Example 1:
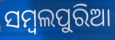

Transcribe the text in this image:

ସମ୍ୱଲପୁରିଆ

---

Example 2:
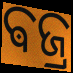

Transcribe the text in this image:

ଵଜ୍ର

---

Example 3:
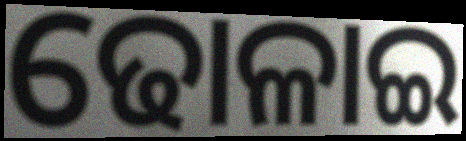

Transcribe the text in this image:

ଢୋଳାଇ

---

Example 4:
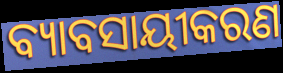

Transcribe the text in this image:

ବ୍ୟାବସାୟୀକରଣ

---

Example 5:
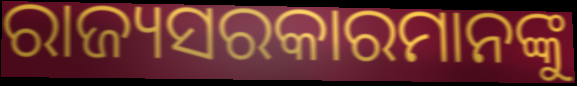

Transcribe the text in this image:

ରାଜ୍ୟସରକାରମାନଙ୍କୁ